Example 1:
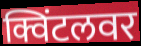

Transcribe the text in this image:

क्विंटलवर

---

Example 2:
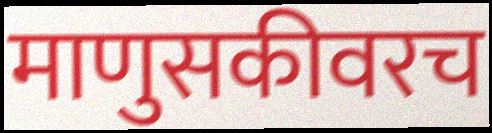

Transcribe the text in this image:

माणुसकीवरच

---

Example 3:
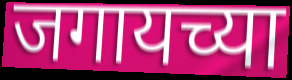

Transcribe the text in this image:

जगायच्या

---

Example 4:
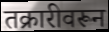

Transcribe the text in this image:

तक्रारीवरून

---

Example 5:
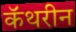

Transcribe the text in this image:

कॅथरीन